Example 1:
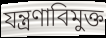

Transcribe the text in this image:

যন্ত্রণাবিমুক্ত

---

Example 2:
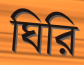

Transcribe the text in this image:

ঘিরি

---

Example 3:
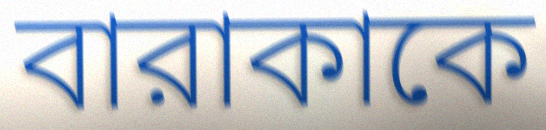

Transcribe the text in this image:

বারাকাকে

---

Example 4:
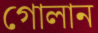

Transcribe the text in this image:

গোলান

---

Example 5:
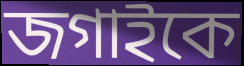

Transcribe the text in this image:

জগাইকে